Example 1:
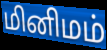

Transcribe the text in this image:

மினிமம்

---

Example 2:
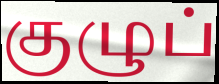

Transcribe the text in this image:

குழுப்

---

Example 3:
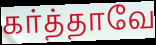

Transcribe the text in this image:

கர்த்தாவே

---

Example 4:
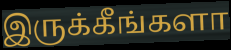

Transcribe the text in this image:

இருக்கீங்களா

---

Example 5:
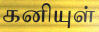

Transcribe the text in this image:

கனியுள்